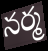
నర్మ